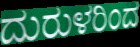
ದುರುಳರಿಂದ